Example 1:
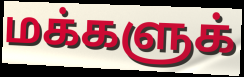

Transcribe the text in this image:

மக்களுக்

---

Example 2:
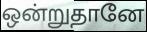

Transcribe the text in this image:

ஒன்றுதானே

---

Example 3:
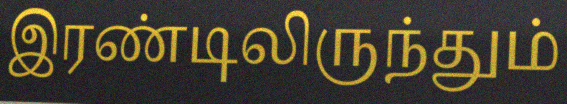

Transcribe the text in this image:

இரண்டிலிருந்தும்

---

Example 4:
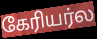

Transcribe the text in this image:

கேரியர்ல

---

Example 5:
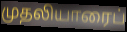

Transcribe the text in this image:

முதலியாரைப்